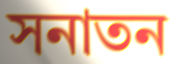
সনাতন